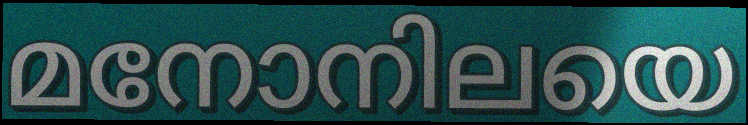
മനോനിലയെ